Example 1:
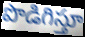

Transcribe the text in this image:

పొడిగిస్తూ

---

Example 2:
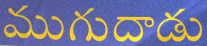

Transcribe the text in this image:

ముగుదాడు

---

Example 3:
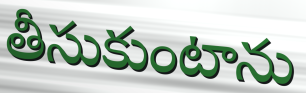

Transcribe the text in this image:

తీసుకుంటాను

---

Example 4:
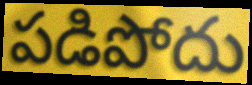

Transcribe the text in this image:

పడిపోదు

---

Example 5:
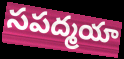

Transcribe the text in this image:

సపద్మయా